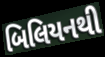
બિલિયનથી